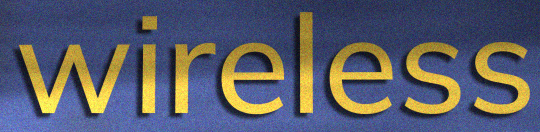
wireless